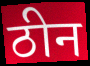
ठीन